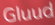
Gluud